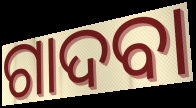
ଗାଦବା